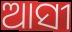
ଆସୀ